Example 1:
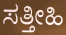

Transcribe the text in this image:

ಸತ್ತೀಹಿ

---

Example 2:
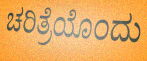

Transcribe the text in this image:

ಚರಿತ್ರೆಯೊಂದು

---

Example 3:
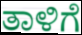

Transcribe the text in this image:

ತಾಳಿಗೆ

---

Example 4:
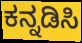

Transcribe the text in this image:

ಕನ್ನಡಿಸಿ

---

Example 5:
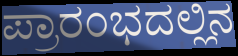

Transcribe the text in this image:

ಪ್ರಾರಂಭದಲ್ಲಿನ